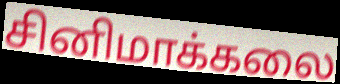
சினிமாக்கலை